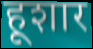
हूशार